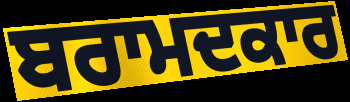
ਬਰਾਮਦਕਾਰ